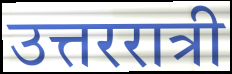
उत्तररात्री